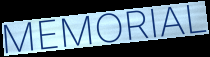
MEMORIAL